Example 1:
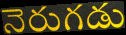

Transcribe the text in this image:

నెరుగడు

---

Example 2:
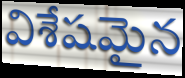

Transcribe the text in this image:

విశేషమైన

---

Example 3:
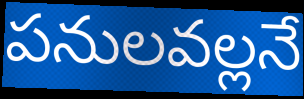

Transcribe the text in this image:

పనులవల్లనే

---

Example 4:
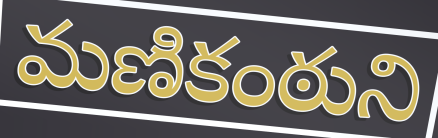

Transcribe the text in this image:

మణికంఠుని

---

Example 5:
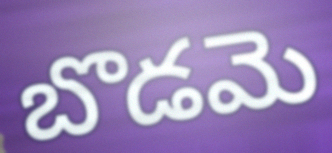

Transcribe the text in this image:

బొడమె